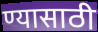
ण्यासाठी